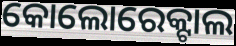
କୋଲୋରେକ୍ଟାଲ